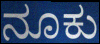
ನೂಕು